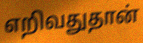
எறிவதுதான்